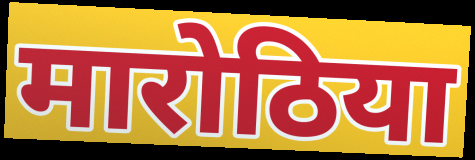
मारोठिया